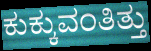
ಕುಕ್ಕುವಂತಿತ್ತು